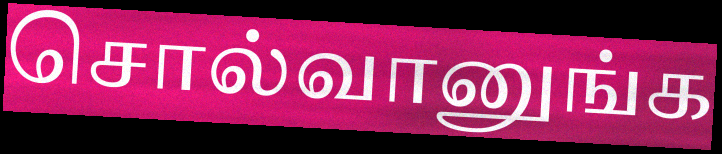
சொல்வானுங்க